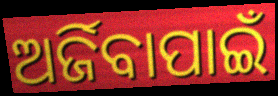
ଅର୍ଜିବାପାଇଁ